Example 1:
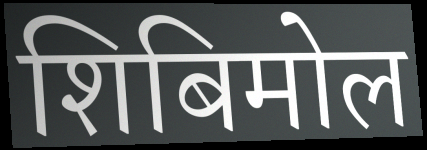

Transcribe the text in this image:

शिबिमोल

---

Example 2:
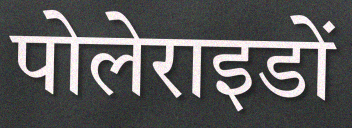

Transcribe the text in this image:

पोलेराइडों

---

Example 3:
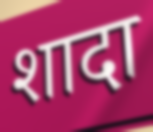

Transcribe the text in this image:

शादा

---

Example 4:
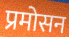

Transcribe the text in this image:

प्रमोसन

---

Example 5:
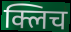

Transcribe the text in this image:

क्लिच